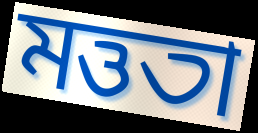
মত্ততা